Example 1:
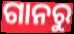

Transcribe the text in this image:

ଗାନରୁ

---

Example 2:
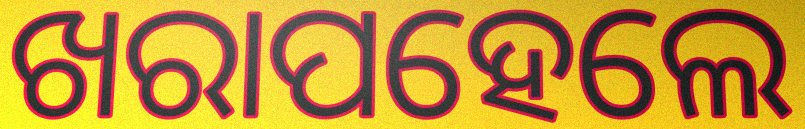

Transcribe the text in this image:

ଖରାପହେଲେ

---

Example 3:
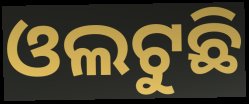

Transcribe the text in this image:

ଓଲଟୁଛି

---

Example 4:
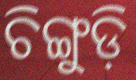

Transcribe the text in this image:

ଚିଙ୍ଗୁଡ଼ି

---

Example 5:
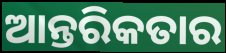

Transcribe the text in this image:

ଆନ୍ତରିକତାର